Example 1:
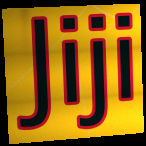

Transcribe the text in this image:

Jiji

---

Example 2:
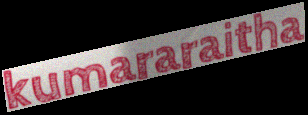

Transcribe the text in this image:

kumararaitha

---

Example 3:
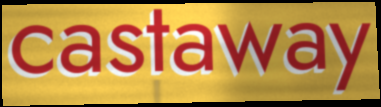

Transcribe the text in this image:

castaway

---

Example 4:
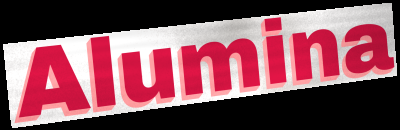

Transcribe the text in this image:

Alumina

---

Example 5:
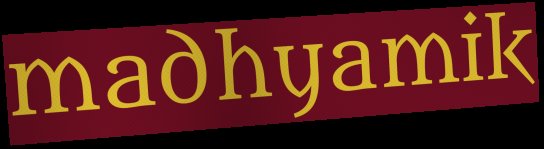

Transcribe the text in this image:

madhyamik